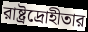
রাষ্ট্রদ্রোহীতার